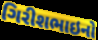
ગિરીશભાઇનો